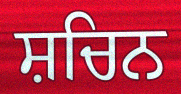
ਸ਼ਚਿਨ